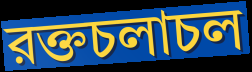
রক্তচলাচল